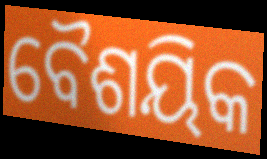
ବୈଶୟିକ